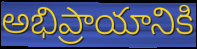
అభిప్రాయానికి